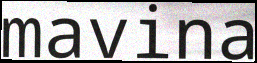
mavina